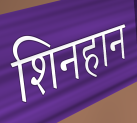
शिनहान